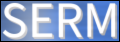
SERM